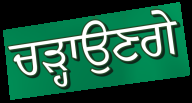
ਚੜ੍ਹਾਉਣਗੇ